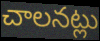
చాలనట్లు